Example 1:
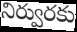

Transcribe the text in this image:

నిర్వురకు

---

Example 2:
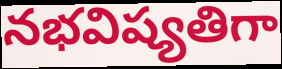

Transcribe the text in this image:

నభవిష్యతిగా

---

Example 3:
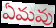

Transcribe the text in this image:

ఏమవు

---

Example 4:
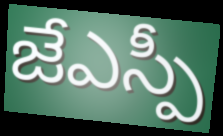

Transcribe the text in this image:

జేఎస్పీ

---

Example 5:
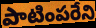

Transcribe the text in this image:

పాటింపరేని